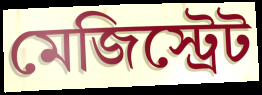
মেজিস্ট্রেট